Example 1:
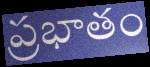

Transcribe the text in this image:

ప్రభాతం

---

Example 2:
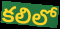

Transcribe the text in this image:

కలిలో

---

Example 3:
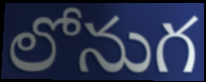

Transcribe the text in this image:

లోనుగ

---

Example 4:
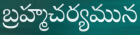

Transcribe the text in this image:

బ్రహ్మచర్యమున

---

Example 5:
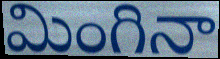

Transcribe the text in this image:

మింగినా